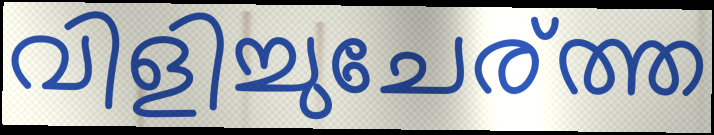
വിളിച്ചുചേര്ത്ത